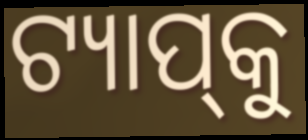
ଟ୍ୟାପ୍‌କୁ